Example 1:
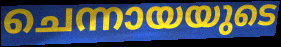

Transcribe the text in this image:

ചെന്നായയുടെ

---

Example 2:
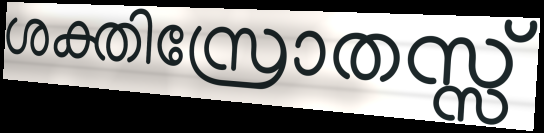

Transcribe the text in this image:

ശക്തിസ്രോതസ്സ്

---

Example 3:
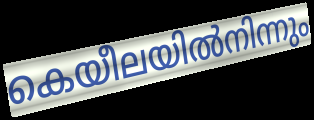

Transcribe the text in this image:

കെയീലയിൽനിന്നും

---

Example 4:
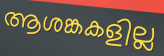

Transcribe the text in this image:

ആശങ്കകളില്ല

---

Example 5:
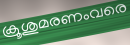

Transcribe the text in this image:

ക്രൂശുമരണംവരെ